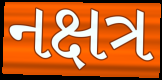
નક્ષત્ર